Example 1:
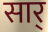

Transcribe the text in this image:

सार्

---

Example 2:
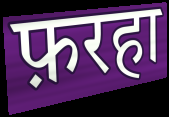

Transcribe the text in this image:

फ़रहा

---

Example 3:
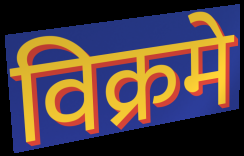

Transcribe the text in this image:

विक्रमे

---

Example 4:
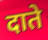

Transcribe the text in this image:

दाते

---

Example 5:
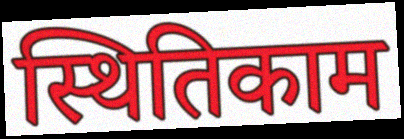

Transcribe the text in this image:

स्थितिकाम